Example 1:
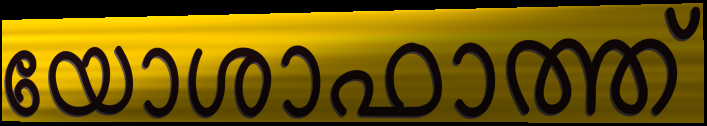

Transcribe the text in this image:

യോശാഫാത്ത്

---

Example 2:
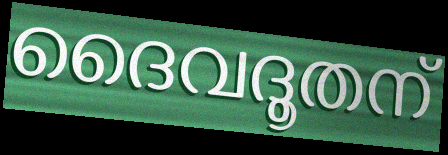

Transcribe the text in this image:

ദൈവദൂതന്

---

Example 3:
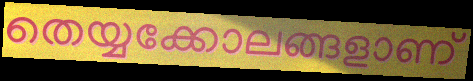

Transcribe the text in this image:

തെയ്യക്കോലങ്ങളാണ്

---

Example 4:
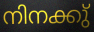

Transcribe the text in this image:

നിനക്കു്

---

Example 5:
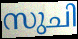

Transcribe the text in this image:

സുചി